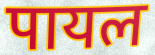
पायल